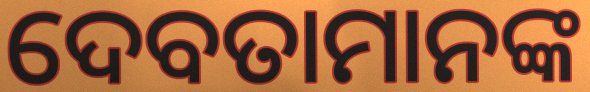
ଦେବତାମାନଙ୍କ